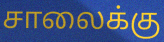
சாலைக்கு